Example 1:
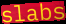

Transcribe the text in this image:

slabs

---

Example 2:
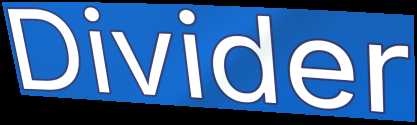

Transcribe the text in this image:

Divider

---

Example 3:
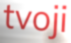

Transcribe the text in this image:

tvoji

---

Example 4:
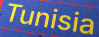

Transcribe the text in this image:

Tunisia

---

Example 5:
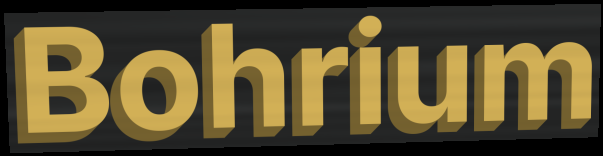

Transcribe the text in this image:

Bohrium